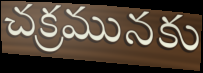
చక్రమునకు